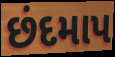
છંદમાપ